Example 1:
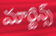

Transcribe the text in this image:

మార్టిన్స్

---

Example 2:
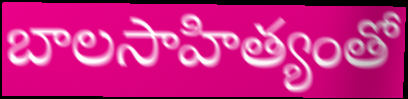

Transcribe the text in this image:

బాలసాహిత్యంతో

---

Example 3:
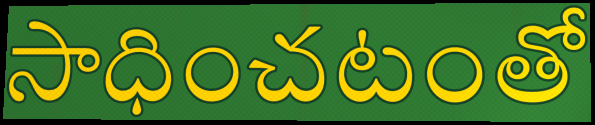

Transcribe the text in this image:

సాధించటంతో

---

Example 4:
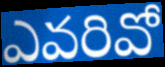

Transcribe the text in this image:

ఎవరివో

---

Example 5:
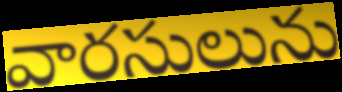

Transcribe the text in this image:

వారసులును